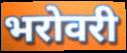
भरोवरी